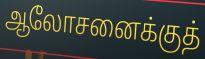
ஆலோசனைக்குத்